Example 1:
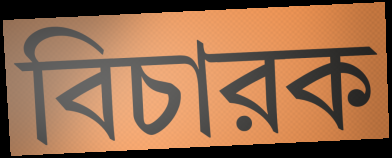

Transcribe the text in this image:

বিচারক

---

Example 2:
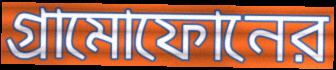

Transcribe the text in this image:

গ্রামোফোনের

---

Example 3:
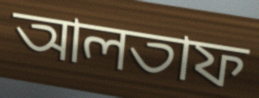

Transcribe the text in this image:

আলতাফ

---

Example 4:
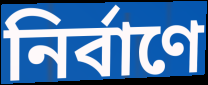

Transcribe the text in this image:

নির্বাণে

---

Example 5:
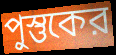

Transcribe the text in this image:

পুস্তুকের